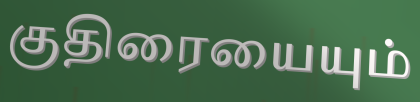
குதிரையையும்